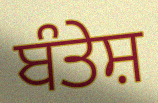
ਬੰਤੇਸ਼